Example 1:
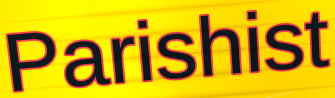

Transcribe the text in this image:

Parishist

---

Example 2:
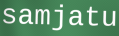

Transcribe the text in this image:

samjatu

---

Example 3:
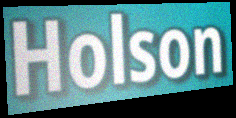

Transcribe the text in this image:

Holson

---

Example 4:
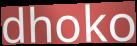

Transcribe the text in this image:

dhoko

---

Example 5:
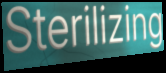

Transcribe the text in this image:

Sterilizing